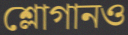
শ্লোগানও